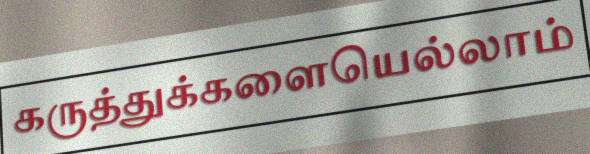
கருத்துக்களையெல்லாம்